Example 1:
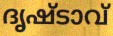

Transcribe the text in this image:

ദൃഷ്ടാവ്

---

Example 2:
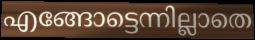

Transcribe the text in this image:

എങ്ങോട്ടെന്നില്ലാതെ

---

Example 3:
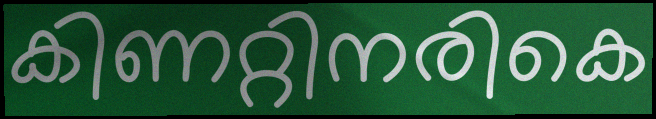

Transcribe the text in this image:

കിണറ്റിനരികെ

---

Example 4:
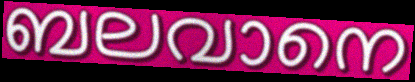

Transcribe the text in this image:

ബലവാനെ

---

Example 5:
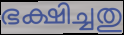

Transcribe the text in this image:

ഭക്ഷിച്ചതു